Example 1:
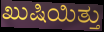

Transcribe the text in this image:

ಖುಷಿಯಿತ್ತು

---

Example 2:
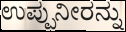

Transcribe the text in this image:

ಉಪ್ಪುನೀರನ್ನು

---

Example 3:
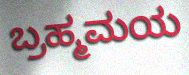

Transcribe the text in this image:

ಬ್ರಹ್ಮಮಯ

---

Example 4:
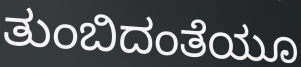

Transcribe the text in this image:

ತುಂಬಿದಂತೆಯೂ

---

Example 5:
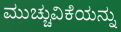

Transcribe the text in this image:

ಮುಚ್ಚುವಿಕೆಯನ್ನು